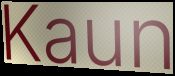
Kaun